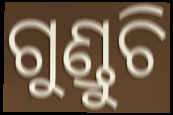
ଗୁଣ୍ଡୁଚି